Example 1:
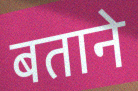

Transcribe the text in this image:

बताने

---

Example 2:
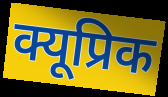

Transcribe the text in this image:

क्यूप्रिक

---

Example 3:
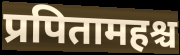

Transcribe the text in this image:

प्रपितामहश्च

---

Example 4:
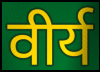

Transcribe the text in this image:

वीर्य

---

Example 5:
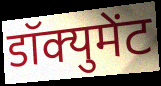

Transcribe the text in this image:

डॉक्युमेंट